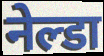
नेल्डा